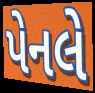
પેનલે